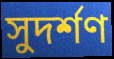
সুদর্শণ